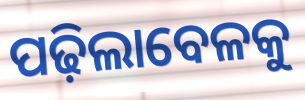
ପଢ଼ିଲାବେଳକୁ